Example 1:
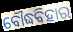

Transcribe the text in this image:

ବୌଦ୍ଧବିହାର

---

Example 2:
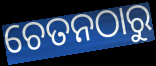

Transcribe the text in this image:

ଚେତନଠାରୁ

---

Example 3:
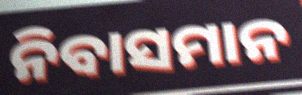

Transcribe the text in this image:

ନିବାସମାନ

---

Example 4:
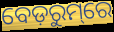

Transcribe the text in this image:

ବେଡ଼ରୁମ୍‌ରେ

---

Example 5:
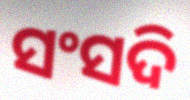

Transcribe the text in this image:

ସଂସଦି